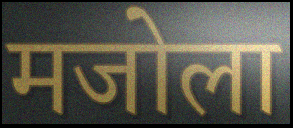
मजोला